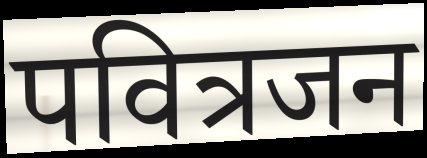
पवित्रजन